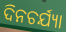
ଦିନଚର୍ଯ୍ଯା